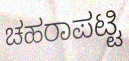
ಚಹರಾಪಟ್ಟಿ